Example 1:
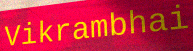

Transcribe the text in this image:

Vikrambhai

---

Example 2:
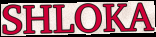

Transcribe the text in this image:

SHLOKA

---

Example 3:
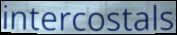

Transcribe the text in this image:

intercostals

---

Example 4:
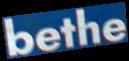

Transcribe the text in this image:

bethe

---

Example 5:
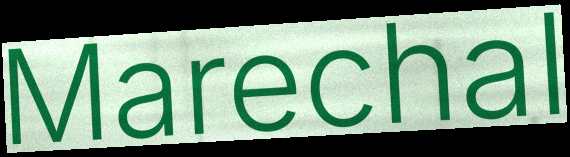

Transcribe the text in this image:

Marechal